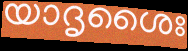
യാദൃശൈഃ